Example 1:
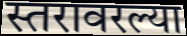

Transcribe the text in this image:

स्तरावरल्या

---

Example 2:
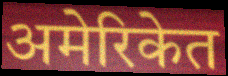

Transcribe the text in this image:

अमेरिकेत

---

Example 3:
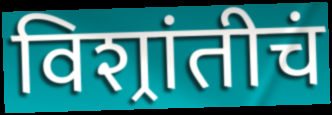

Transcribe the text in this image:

विश्रांतीचं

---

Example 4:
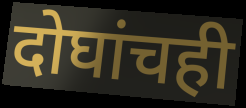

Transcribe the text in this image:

दोघांचही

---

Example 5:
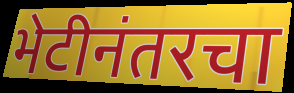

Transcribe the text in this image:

भेटीनंतरचा